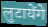
लुटायेंगे